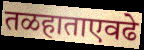
तळहाताएवढे